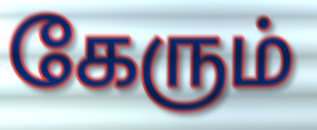
கேரும்